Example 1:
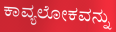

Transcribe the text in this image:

ಕಾವ್ಯಲೋಕವನ್ನು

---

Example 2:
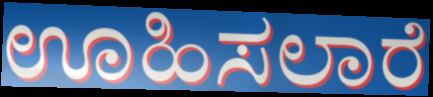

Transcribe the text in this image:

ಊಹಿಸಲಾರೆ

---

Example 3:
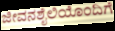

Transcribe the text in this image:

ಜೀವನಶೈಲಿಯೊಂದಿಗೆ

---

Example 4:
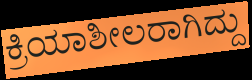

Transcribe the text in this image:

ಕ್ರಿಯಾಶೀಲರಾಗಿದ್ದು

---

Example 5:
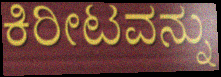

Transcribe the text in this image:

ಕಿರೀಟವನ್ನು